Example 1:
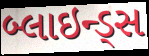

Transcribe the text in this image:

બ્લાઇન્ડ્સ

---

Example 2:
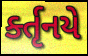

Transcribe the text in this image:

ર્ક્તૃનયે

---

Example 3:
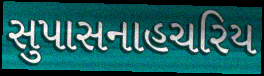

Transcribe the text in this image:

સુપાસનાહચરિય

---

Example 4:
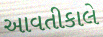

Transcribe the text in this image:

આવતીકાલે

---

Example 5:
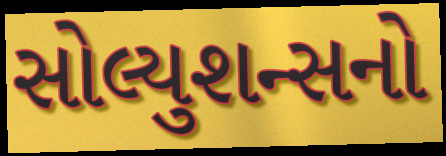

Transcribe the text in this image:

સોલ્યુશન્સનો